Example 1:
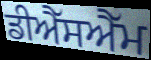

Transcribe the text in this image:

ਡੀਐੱਸਐੱਮ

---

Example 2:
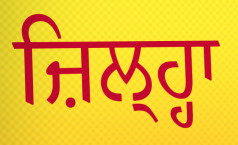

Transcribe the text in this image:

ਜ਼ਿਲ੍ਹ੍ਹਾ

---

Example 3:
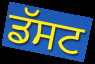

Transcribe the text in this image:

ਡੱਸਟ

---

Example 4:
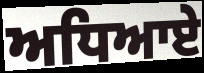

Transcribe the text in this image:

ਅਧਿਆਏ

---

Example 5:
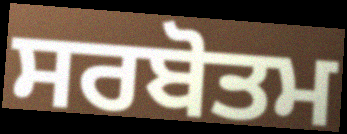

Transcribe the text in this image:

ਸਰਬੋਤਮ